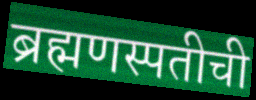
ब्रह्मणस्पतीची